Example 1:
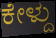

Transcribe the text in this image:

ಕೇಳ್ದು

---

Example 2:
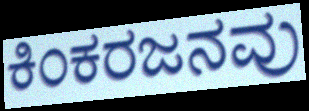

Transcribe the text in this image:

ಕಿಂಕರಜನವು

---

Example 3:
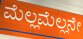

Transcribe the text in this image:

ಮೆಲ್ಲಮೆಲ್ಲನೇ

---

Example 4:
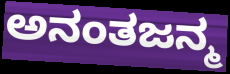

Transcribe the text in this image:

ಅನಂತಜನ್ಮ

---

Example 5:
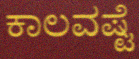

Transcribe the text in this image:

ಕಾಲವಷ್ಟೆ